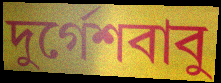
দুর্গেশবাবু